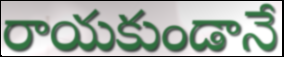
రాయకుండానే